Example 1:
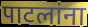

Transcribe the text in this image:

पाटलांना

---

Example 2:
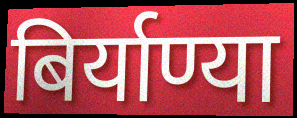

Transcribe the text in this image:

बिर्याण्या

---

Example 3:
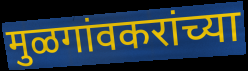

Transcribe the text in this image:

मुळगांवकरांच्या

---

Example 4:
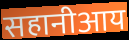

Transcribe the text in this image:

सहानीआय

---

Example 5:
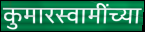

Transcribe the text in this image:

कुमारस्वामींच्या